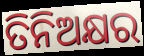
ତିନିଅକ୍ଷର